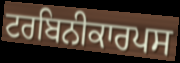
ਟਰਬਿਨੀਕਾਰਪਸ